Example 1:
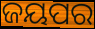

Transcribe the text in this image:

ଜୟପର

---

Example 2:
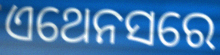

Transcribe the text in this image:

ଏଥେନସରେ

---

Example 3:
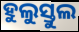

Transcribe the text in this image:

ହୁଲୁସ୍ତୁଲ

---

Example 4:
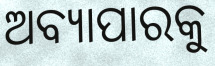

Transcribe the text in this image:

ଅବ୍ୟାପାରକୁ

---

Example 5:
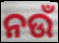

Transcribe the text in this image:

ନଉଁ